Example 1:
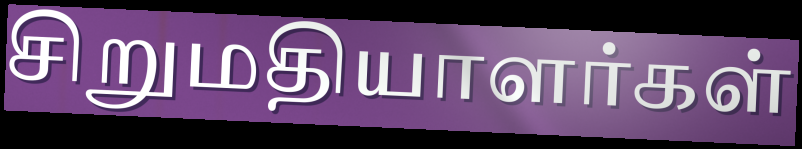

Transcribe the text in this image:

சிறுமதியாளர்கள்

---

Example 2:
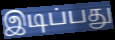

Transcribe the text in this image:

இடிப்பது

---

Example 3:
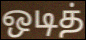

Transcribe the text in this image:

ஒடித்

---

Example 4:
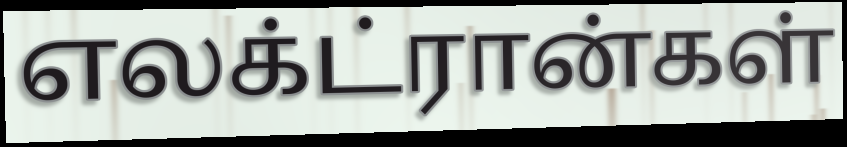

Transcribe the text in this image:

எலக்ட்ரான்கள்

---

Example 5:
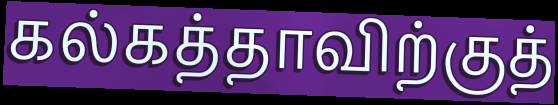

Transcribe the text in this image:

கல்கத்தாவிற்குத்